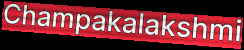
Champakalakshmi